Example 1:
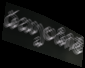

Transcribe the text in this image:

డబ్బులడిగితే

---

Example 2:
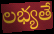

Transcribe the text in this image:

లభ్యతే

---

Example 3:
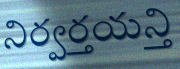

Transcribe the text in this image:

నిర్వర్తయన్తి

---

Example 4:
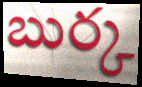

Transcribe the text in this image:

బుర్క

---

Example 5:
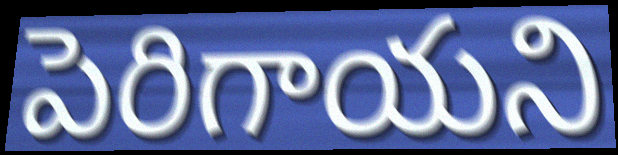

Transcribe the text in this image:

పెరిగాయని